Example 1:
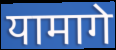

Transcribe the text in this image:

यामागे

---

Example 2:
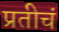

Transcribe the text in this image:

प्रतीचं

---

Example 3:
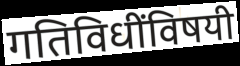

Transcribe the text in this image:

गतिविधींविषयी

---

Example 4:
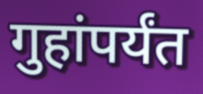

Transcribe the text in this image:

गुहांपर्यंत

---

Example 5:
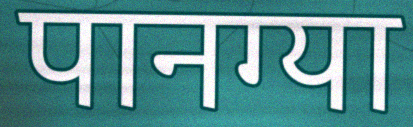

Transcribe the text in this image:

पानग्या